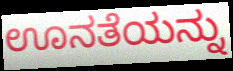
ಊನತೆಯನ್ನು